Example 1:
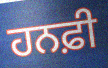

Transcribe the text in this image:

ਹਨਫ਼ੀ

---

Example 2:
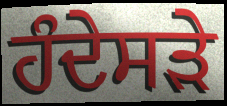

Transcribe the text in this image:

ਹੰਦੇਸੜੇ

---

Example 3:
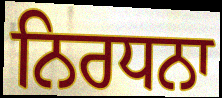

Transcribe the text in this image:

ਨਿਰਧਨਾ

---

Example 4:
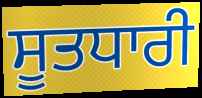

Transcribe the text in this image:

ਸੂਤਧਾਰੀ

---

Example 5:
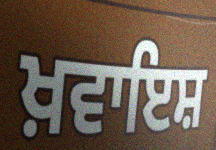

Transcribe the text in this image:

ਖ਼ਵਾਇਸ਼